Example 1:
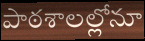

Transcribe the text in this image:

పాఠశాలల్లోనూ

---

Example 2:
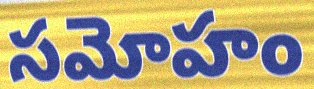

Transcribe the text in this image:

సమోహం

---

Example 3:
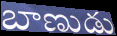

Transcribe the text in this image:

బాణుడు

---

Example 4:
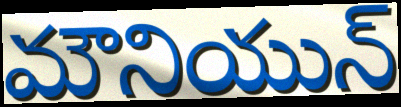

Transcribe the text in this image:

మౌనియున్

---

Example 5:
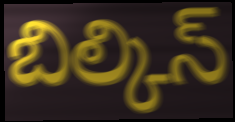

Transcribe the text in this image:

బిల్కిస్